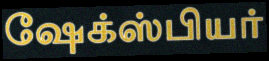
ஷேக்ஸ்பியர்